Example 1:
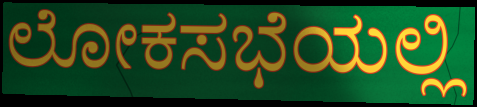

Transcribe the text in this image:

ಲೋಕಸಭೆಯಲ್ಲಿ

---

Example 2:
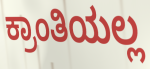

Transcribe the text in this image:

ಕ್ರಾಂತಿಯಲ್ಲ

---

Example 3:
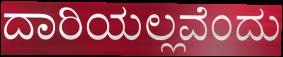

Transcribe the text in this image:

ದಾರಿಯಲ್ಲವೆಂದು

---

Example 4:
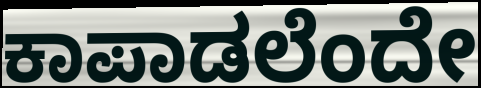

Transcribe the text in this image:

ಕಾಪಾಡಲೆಂದೇ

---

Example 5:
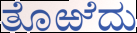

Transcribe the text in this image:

ತೊಱೆದು